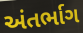
અંતર્ભાગ